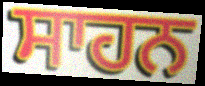
ਸਾਹਨ